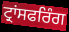
ਟ੍ਰਾਂਸਫਰਿੰਗ